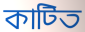
কাট্তি